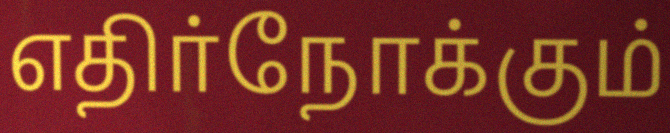
எதிர்நோக்கும்